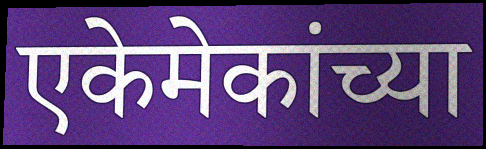
एकेमेकांच्या